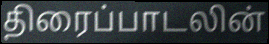
திரைப்பாடலின்